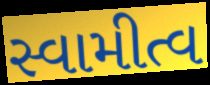
સ્વામીત્વ